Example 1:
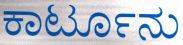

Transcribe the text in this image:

ಕಾರ್ಟೂನು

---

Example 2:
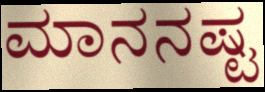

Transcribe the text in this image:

ಮಾನನಷ್ಟ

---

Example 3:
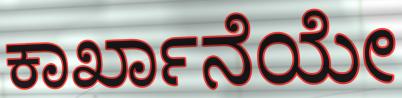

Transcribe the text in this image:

ಕಾರ್ಖಾನೆಯೇ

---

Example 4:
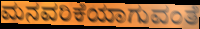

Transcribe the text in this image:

ಮನವರಿಕೆಯಾಗುವಂತೆ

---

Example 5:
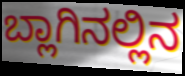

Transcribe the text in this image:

ಬ್ಲಾಗಿನಲ್ಲಿನ